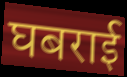
घबराई